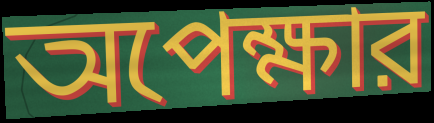
অপেক্ষার